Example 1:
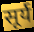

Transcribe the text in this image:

सूर्य॑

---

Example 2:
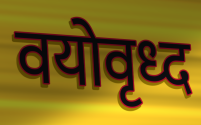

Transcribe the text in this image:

वयोवृध्द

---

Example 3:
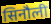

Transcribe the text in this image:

सिनौली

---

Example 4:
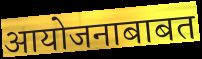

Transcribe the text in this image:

आयोजनाबाबत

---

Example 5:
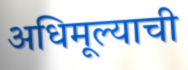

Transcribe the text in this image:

अधिमूल्याची